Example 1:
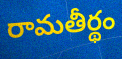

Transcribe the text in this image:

రామతీర్థం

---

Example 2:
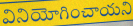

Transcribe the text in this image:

వినియోగించాయని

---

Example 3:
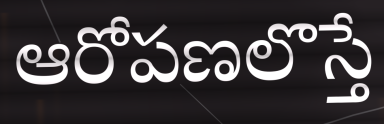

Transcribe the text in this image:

ఆరోపణలొస్తే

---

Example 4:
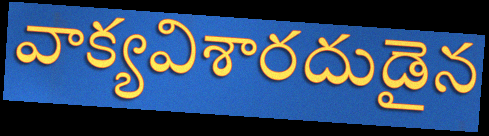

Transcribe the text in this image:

వాక్యవిశారదుడైన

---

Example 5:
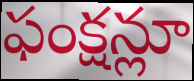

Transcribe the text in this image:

ఫంక్షన్లూ